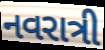
નવરાત્રી